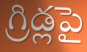
గ్రిడ్లపై